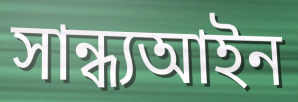
সান্ধ্যআইন